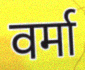
वर्मा